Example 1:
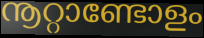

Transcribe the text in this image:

നൂറ്റാണ്ടോളം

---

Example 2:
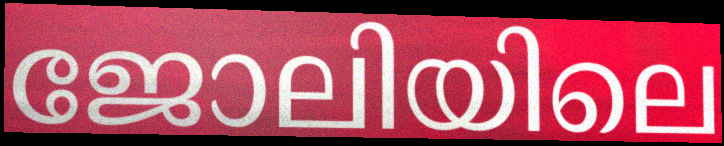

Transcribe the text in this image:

ജോലിയിലെ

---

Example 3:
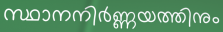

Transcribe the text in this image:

സ്ഥാനനിർണ്ണയത്തിനും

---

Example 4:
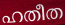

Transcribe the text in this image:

ഹതീത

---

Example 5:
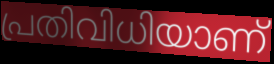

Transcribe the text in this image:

പ്രതിവിധിയാണ്